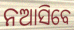
ନଆସିବେ